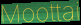
Moottai